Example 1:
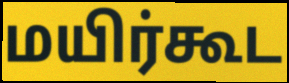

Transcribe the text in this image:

மயிர்கூட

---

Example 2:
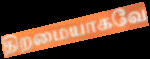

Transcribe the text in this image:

திறமையாகவே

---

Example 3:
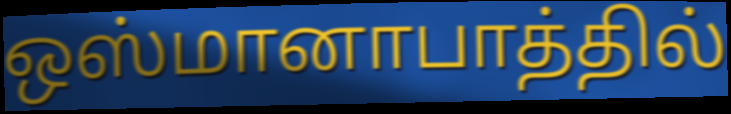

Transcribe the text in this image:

ஒஸ்மானாபாத்தில்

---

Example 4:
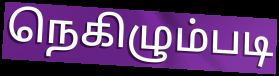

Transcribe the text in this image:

நெகிழும்படி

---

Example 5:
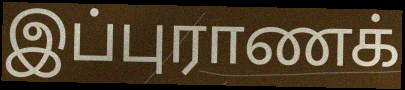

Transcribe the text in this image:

இப்புராணக்